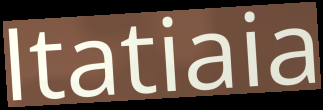
Itatiaia